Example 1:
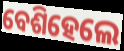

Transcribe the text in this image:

ବେଶିହେଲେ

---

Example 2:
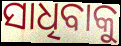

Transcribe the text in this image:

ସାଧିବାକୁ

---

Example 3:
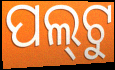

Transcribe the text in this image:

ପଲ୍‍ଟୁ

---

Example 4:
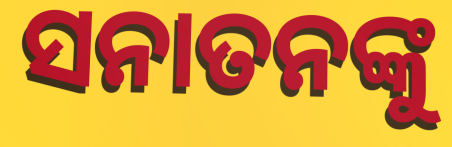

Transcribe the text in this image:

ସନାତନଙ୍କୁ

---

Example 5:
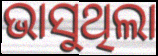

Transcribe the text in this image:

ଭାସୁଥିଲା